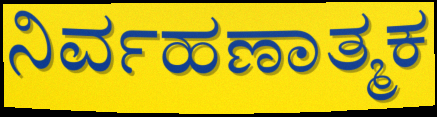
ನಿರ್ವಹಣಾತ್ಮಕ